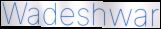
Wadeshwar